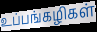
உப்பங்கழிகள்